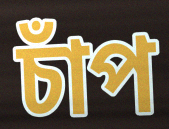
চাঁপ